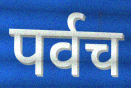
पर्वच